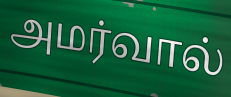
அமர்வால்